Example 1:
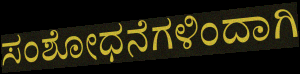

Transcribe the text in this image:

ಸಂಶೋಧನೆಗಳಿಂದಾಗಿ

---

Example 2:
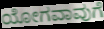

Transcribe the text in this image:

ಯೋಗವಾವುಗೆ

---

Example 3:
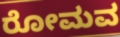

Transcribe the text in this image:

ರೋಮವ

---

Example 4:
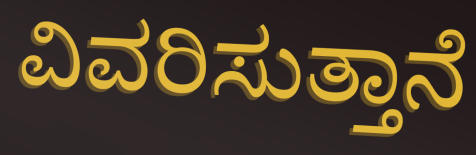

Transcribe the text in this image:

ವಿವರಿಸುತ್ತಾನೆ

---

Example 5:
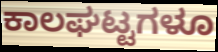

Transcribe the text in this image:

ಕಾಲಘಟ್ಟಗಳೂ